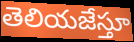
తెలియజేస్తూ